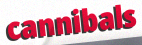
cannibals